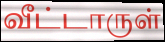
வீட்டாருள்